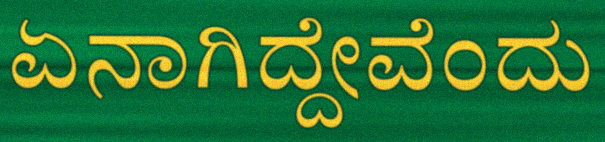
ಏನಾಗಿದ್ದೇವೆಂದು